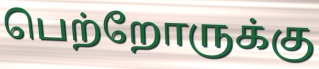
பெற்றோருக்கு